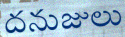
దనుజులు